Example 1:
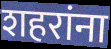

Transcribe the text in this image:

शहरांना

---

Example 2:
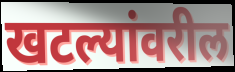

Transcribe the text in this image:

खटल्यांवरील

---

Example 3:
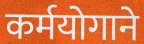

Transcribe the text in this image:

कर्मयोगाने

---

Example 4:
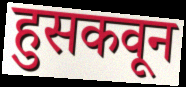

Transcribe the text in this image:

हुसकवून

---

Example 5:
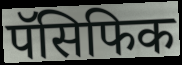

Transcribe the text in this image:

पॅसिफिक